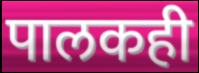
पालकही